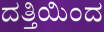
ದತ್ತಿಯಿಂದ